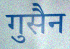
गुसैन